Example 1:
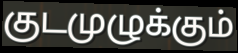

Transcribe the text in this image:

குடமுழுக்கும்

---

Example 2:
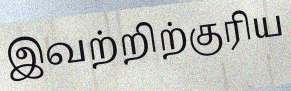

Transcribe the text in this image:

இவற்றிற்குரிய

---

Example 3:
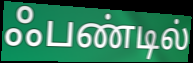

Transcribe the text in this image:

ஃபண்டில்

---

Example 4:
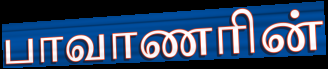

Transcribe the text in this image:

பாவாணரின்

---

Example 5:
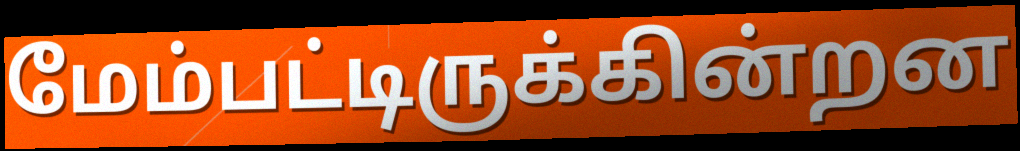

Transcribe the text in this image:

மேம்பட்டிருக்கின்றன